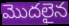
మొదలైన